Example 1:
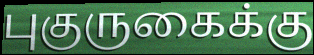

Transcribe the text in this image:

புகுருகைக்கு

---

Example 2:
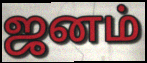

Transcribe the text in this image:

ஜனம்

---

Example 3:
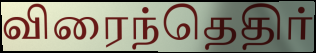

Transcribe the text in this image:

விரைந்தெதிர்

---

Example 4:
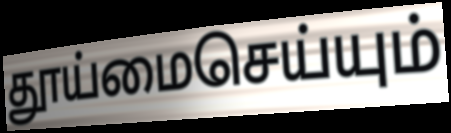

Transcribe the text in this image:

தூய்மைசெய்யும்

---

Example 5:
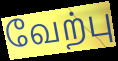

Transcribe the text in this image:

வேற்பு